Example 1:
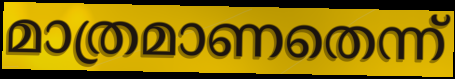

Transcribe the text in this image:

മാത്രമാണതെന്ന്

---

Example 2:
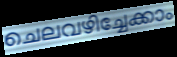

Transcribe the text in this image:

ചെലവഴിച്ചേക്കാം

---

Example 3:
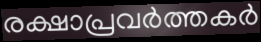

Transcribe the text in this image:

രക്ഷാപ്രവർത്തകർ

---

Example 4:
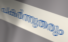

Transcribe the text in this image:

പകർന്നുതരും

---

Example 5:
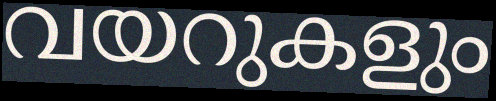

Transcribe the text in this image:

വയറുകളും